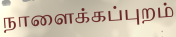
நாளைக்கப்புறம்